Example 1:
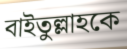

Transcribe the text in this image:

বাইতুল্লাহকে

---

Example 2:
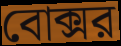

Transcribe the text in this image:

বোক্সর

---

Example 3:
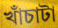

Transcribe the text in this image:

খাঁচাটা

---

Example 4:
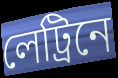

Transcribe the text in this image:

লেট্রিনে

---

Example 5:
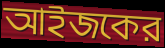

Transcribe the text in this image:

আইজকের